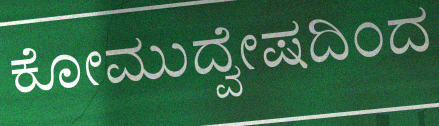
ಕೋಮುದ್ವೇಷದಿಂದ